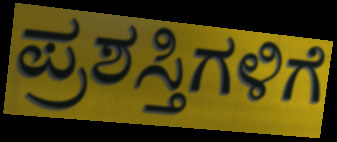
ಪ್ರಶಸ್ತಿಗಳಿಗೆ